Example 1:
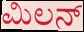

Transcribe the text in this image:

ಮಿಲನ್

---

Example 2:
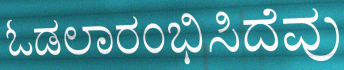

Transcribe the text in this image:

ಓಡಲಾರಂಭಿಸಿದೆವು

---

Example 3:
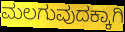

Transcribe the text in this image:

ಮಲಗುವುದಕ್ಕಾಗಿ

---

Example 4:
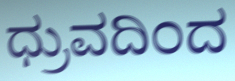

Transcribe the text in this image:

ಧ್ರುವದಿಂದ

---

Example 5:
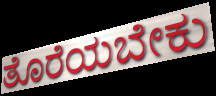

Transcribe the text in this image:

ತೊರೆಯಬೇಕು